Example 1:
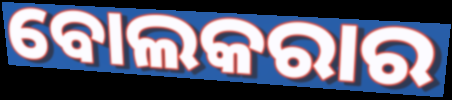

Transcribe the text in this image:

ବୋଲକରାର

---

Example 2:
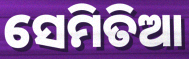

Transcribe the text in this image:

ସେମିତିଆ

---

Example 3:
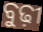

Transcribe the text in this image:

ବୁଢ଼ୀ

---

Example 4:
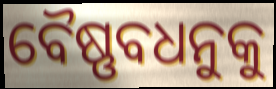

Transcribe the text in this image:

ବୈଷ୍ଣବଧନୁକୁ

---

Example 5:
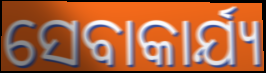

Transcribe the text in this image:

ସେବାକାର୍ଯ୍ୟ